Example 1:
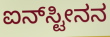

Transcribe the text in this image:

ಐನ್‌ಸ್ಟೀನನ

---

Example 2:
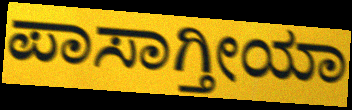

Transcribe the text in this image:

ಪಾಸಾಗ್ತೀಯಾ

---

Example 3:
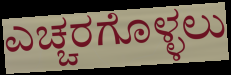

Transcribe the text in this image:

ಎಚ್ಚರಗೊಳ್ಳಲು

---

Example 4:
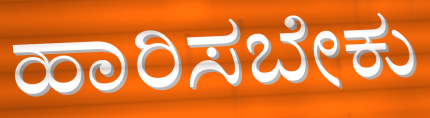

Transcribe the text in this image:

ಹಾರಿಸಬೇಕು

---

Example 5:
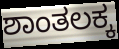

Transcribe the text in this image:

ಶಾಂತಲಕ್ಕ